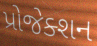
પ્રોજેક્શન